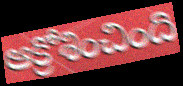
ఆక్రోశించింది